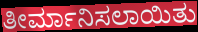
ತೀರ್ಮಾನಿಸಲಾಯಿತು